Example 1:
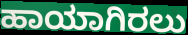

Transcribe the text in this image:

ಹಾಯಾಗಿರಲು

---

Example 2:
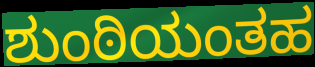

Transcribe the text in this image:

ಶುಂಠಿಯಂತಹ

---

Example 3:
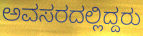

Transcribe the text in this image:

ಅವಸರದಲ್ಲಿದ್ದರು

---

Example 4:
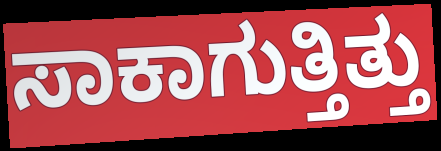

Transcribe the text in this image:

ಸಾಕಾಗುತ್ತಿತ್ತು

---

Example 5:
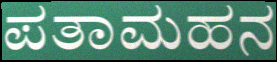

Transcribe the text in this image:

ಪತಾಮಹನ